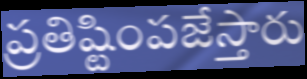
ప్రతిష్టింపజేస్తారు